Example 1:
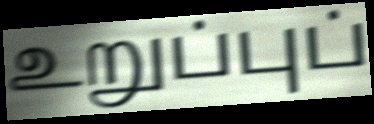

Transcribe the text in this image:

உறுப்புப்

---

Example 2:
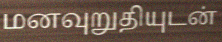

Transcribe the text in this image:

மனவுறுதியுடன்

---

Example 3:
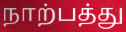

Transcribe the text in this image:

நாற்பத்து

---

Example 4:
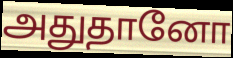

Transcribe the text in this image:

அதுதானோ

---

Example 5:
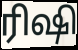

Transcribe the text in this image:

ரிஷி